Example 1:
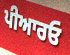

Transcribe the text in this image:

ਪੀਆਰਓ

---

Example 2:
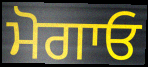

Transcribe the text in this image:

ਮੋਗਾਓ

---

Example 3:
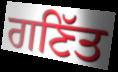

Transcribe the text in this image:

ਗਣਿੱਤ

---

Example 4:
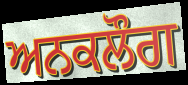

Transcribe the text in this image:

ਅਨਕਲੌਗ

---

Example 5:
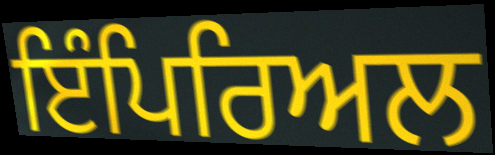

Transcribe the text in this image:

ਇੰਪਿਰਿਅਲ